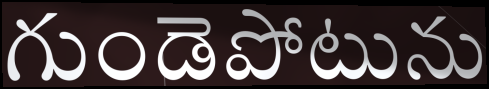
గుండెపోటును